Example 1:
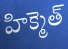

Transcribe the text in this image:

హిక్మెత్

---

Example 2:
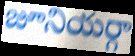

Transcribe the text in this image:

జూనియర్గా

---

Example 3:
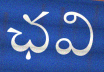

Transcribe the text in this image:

ఛవి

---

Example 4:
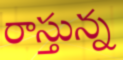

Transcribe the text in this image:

రాస్తున్న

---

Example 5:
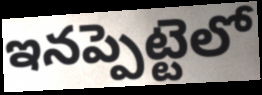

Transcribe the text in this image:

ఇనప్పెట్టెలో